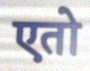
एतो